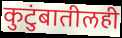
कुटुंबातीलही